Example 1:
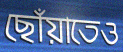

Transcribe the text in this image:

ছোঁয়াতেও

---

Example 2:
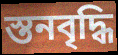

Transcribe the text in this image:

স্তনবৃদ্ধি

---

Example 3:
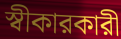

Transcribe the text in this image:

স্বীকারকারী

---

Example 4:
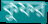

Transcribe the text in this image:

কুফর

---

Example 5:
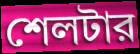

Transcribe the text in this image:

শেলটার